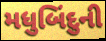
મધુબિંદુની